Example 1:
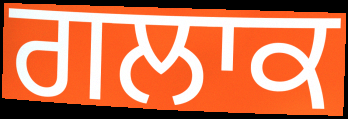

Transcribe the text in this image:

ਗਲਾਕ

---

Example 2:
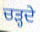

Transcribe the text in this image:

ਚਡ਼੍ਹਦੇ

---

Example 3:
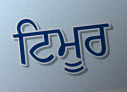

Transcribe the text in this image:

ਟਿਮੂਰ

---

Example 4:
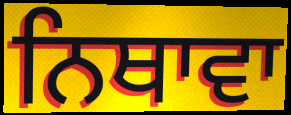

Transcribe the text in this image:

ਨਿਥਾਵਾ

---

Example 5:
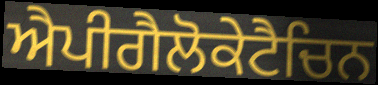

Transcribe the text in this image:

ਐਪੀਗੈਲੋਕੇਟੈਚਿਨ